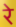
रे